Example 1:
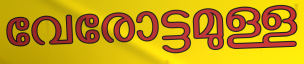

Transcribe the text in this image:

വേരോട്ടമുള്ള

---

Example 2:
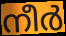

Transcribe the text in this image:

നീർ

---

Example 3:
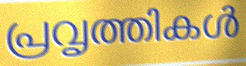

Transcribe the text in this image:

പ്രവൃത്തികൾ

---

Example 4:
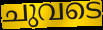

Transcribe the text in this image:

ചുവടെ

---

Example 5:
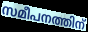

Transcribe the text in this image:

സമീപനത്തിന്